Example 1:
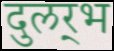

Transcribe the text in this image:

दुलर्भ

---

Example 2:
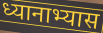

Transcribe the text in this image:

ध्यानाभ्यास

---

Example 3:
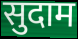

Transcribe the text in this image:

सुदाम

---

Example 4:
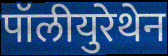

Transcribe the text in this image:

पॉलीयुरेथेन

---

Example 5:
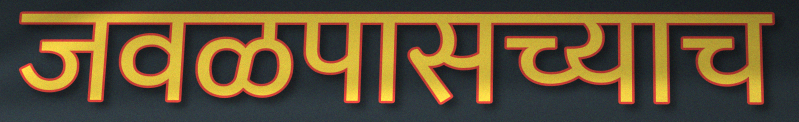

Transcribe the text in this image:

जवळपासच्याच